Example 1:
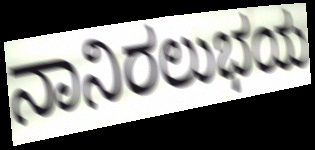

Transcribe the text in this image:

ನಾನಿರಲುಭಯ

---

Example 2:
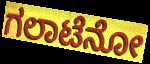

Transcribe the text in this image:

ಗಲಾಟೆನೋ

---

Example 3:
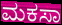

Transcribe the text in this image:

ಮಕಸಾ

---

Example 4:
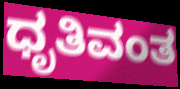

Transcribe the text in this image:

ಧೃತಿವಂತ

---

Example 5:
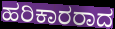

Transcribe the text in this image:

ಹರಿಕಾರರಾದ